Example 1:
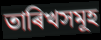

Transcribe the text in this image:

তাৰিখসমূহ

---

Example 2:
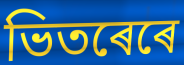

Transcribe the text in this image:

ভিতৰেৰে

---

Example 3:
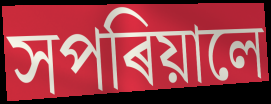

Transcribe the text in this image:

সপৰিয়ালে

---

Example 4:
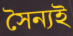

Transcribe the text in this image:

সৈন্যই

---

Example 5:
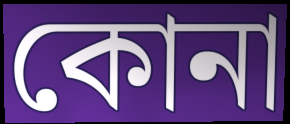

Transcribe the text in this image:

কোনা